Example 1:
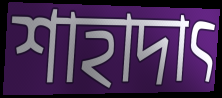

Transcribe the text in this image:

শাহাদাৎ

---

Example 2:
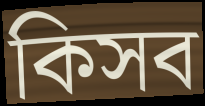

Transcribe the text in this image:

কিসব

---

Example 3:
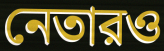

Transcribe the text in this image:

নেতারও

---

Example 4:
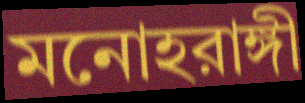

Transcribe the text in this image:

মনোহরাঙ্গী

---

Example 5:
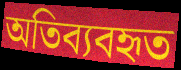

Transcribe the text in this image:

অতিব্যবহৃত